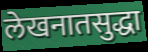
लेखनातसुद्धा